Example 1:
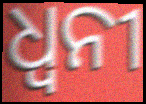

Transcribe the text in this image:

ଧ୍ବନୀ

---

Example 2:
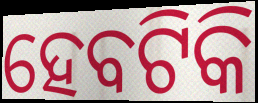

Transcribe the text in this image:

ହେବଟିକି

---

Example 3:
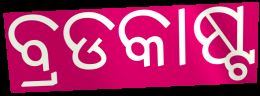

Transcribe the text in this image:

ବ୍ରଡକାଷ୍ଟ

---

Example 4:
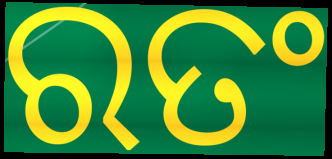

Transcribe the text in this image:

ରତଂ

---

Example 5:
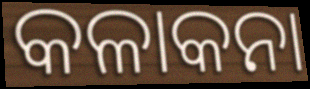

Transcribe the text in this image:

କଳାକନା